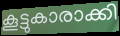
കൂട്ടുകാരാക്കി